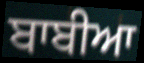
ਬਾਬੀਆ